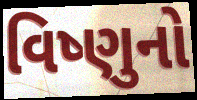
વિષ્ણુનો